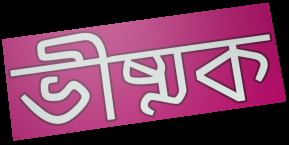
ভীষ্মক